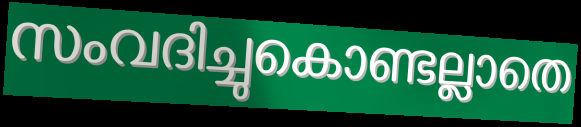
സംവദിച്ചുകൊണ്ടല്ലാതെ